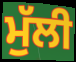
ਮੁੱਲੀ